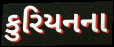
કુરિયનના